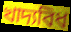
খাদ্যবিধ